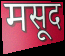
मसूद